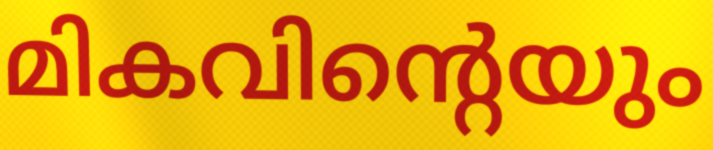
മികവിന്റെയും